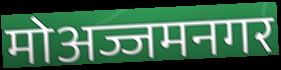
मोअज्जमनगर